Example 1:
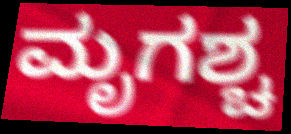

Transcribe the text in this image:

ಮೃಗಶ್ಚ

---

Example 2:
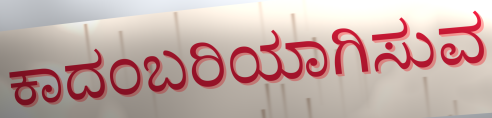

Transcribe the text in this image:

ಕಾದಂಬರಿಯಾಗಿಸುವ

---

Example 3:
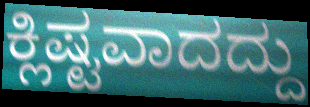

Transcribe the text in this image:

ಕ್ಲಿಷ್ಟವಾದದ್ದು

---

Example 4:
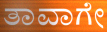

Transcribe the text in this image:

ತಾವಾಗೇ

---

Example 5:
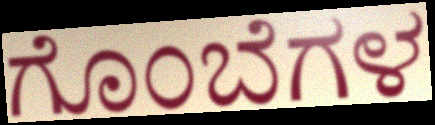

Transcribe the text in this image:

ಗೊಂಬೆಗಳ